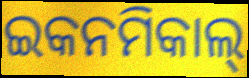
ଇକନମିକାଲ୍